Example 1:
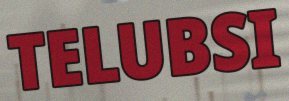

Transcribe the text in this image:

TELUBSI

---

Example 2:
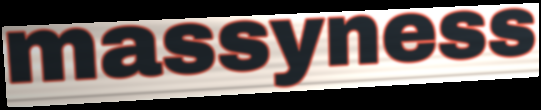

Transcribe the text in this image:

massyness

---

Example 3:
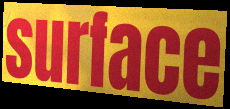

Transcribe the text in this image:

surface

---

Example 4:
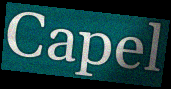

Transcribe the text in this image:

Capel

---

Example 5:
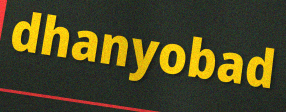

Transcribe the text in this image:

dhanyobad